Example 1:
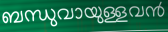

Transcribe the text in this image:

ബന്ധുവായുള്ളവൻ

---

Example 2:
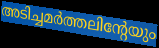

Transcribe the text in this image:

അടിച്ചമർത്തലിന്റേയും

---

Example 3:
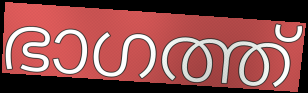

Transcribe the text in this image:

ഭാഗത്ത്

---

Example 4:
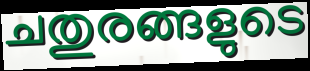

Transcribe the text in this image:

ചതുരങ്ങളുടെ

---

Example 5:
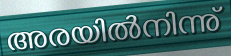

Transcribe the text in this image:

അരയിൽനിന്നു്